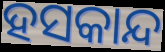
ହସକାନ୍ଦ